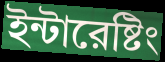
ইন্টারেষ্টিং